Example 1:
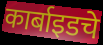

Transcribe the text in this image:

कार्बाइडचे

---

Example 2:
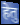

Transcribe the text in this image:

हेतु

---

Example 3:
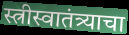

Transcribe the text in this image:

स्त्रीस्वातंत्र्याचा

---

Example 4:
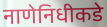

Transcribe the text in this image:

नाणेनिधीकडे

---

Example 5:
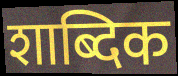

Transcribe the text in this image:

शाब्दिक